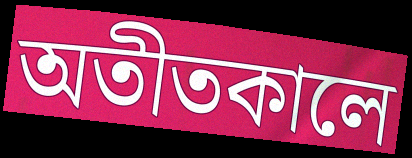
অতীতকালে